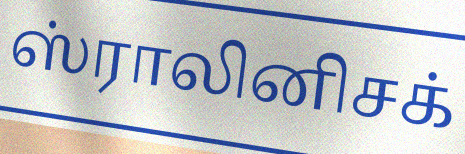
ஸ்ராலினிசக்